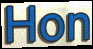
Hon